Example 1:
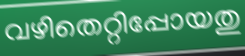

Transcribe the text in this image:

വഴിതെറ്റിപ്പോയതു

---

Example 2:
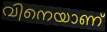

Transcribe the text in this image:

വിനെയാണ്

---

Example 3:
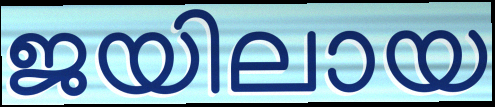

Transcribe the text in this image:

ജയിലായ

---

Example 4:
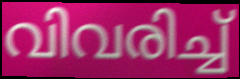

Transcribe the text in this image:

വിവരിച്ച്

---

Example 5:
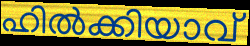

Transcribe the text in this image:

ഹിൽക്കിയാവ്